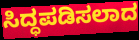
ಸಿದ್ಧಪಡಿಸಲಾದ